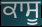
ਕਾਸੂ